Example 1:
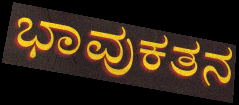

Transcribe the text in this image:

ಭಾವುಕತನ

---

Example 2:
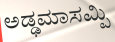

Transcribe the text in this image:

ಅಡ್ಢಮಾಸಮ್ಪಿ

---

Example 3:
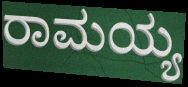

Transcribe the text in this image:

ರಾಮಯ್ಯ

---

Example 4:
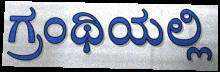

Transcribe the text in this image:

ಗ್ರಂಥಿಯಲ್ಲಿ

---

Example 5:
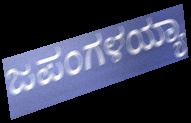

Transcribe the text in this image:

ಜಪಂಗಳಯ್ಯಾ